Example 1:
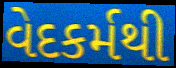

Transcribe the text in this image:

વેદકર્મથી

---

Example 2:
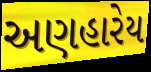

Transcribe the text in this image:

અણહારેય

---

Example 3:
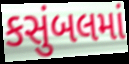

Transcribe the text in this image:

કસુંબલમાં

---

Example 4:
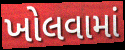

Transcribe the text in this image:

ખોલવામાં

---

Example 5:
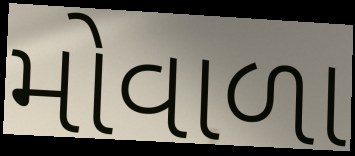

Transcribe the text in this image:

મોવાળા